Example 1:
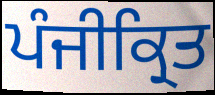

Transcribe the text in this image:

ਪੰਜੀਕ੍ਰਿਤ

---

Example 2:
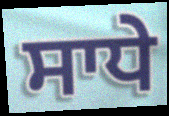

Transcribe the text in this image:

ਸਾਧੇ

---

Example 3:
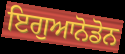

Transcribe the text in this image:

ਇਗੁਆਨੋਡੋਨ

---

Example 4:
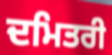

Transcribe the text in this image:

ਦਮਿਤਰੀ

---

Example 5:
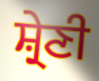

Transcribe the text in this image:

ਸ਼੍ਰੇਣੀ